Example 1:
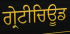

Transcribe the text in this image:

ਗ੍ਰੇਟੀਚਿਊਡ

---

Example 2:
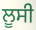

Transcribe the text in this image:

ਲੂਸੀ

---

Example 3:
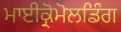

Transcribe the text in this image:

ਮਾਈਕ੍ਰੋਮੋਲਡਿੰਗ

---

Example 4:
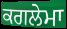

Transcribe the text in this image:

ਕਗਲੇਮਾ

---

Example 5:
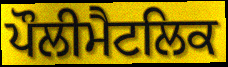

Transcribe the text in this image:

ਪੌਲੀਮੈਟਲਿਕ